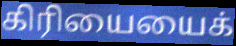
கிரியையைக்